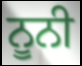
ਨੂਨੀ